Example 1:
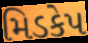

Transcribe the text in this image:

મિડકેપ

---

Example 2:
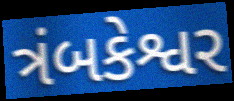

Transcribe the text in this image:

ત્રંબકેશ્વર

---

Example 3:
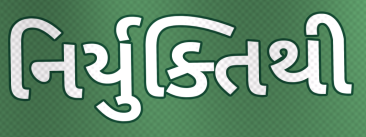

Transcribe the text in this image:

નિર્યુક્તિથી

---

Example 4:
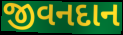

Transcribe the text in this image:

જીવનદાન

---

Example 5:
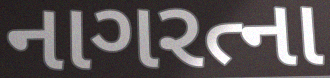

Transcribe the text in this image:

નાગરત્ના